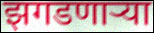
झगडणाऱ्या